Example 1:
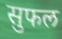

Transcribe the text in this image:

सुफल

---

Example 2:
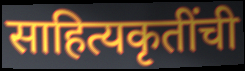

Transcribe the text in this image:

साहित्यकृतींची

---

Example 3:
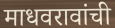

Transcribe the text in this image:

माधवरावांची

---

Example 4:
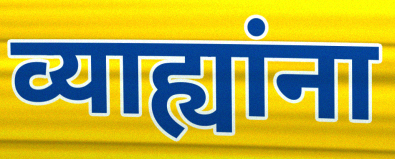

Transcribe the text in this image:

व्याह्यांना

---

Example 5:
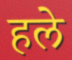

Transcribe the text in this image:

हले